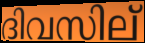
ദിവസില്